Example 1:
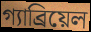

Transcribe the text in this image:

গ্যাব্রিয়েল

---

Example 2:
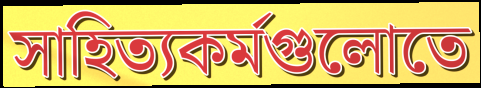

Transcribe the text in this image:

সাহিত্যকর্মগুলোতে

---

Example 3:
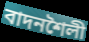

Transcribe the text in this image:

বাদনশৈলী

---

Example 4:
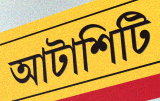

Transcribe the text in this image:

আটাশিটি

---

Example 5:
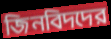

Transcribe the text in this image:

জিনবিদদের